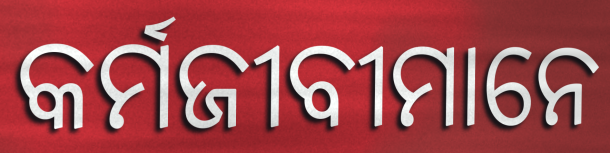
କର୍ମଜୀବୀମାନେ